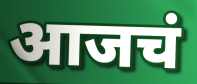
आजचं